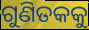
ଗୁଣିତକକୁ